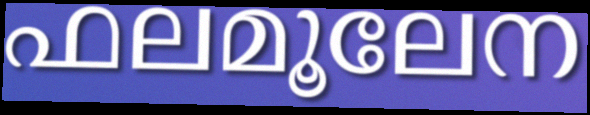
ഫലമൂലേന